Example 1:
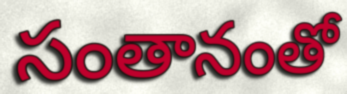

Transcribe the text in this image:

సంతానంతో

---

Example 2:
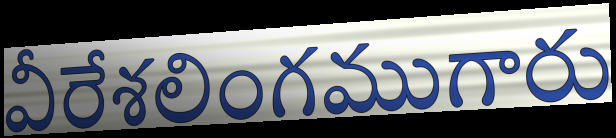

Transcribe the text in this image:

వీరేశలింగముగారు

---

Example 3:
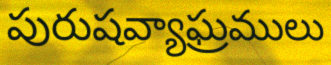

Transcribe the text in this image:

పురుషవ్యాఘ్రములు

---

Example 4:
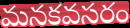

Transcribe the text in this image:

మనకవసరం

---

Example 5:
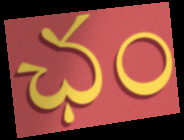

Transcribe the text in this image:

ఛం